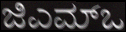
ಜಿಎಮ್ಒ